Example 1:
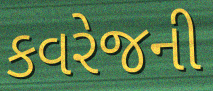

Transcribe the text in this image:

કવરેજની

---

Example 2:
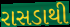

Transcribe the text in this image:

રાસડાથી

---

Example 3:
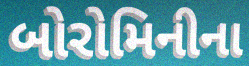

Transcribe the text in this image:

બોરોમિનીના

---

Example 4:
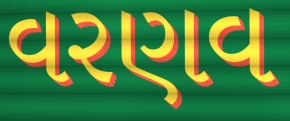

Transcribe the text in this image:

વરણવ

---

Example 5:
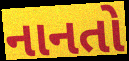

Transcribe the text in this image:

નાનતો